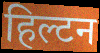
हिल्टन